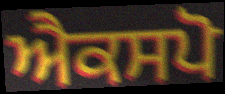
ਐਕਸਪੋ